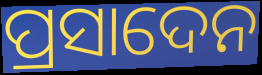
ପ୍ରସାଦେନ